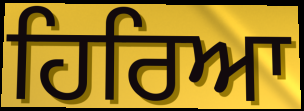
ਹਿਰਿਆ